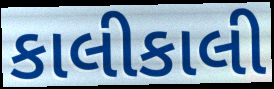
કાલીકાલી